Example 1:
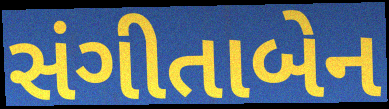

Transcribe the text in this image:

સંગીતાબેન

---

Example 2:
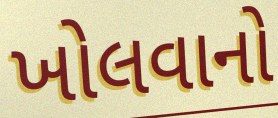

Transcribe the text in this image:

ખોલવાનો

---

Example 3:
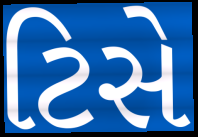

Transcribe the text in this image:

ટિસે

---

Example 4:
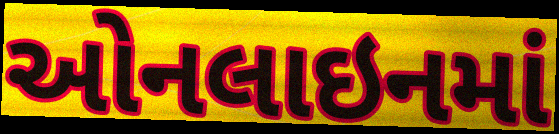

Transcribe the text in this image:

ઓનલાઇનમાં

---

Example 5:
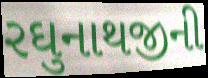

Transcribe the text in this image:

રઘુનાથજીની